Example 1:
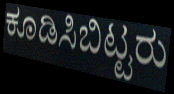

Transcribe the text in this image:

ಕೂಡಿಸಿಬಿಟ್ಟರು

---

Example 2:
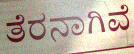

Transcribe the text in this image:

ತೆರನಾಗಿವೆ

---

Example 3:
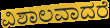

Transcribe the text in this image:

ವಿಶಾಲವಾದರೆ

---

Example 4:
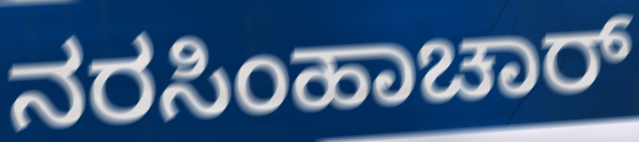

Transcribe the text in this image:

ನರಸಿಂಹಾಚಾರ್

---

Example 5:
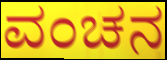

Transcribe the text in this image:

ವಂಚನ